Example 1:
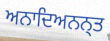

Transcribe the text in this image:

ਅਨਾਦਿਅਨਨ੍ਤ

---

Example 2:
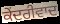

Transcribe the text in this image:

ਕੇਂਦਰੀਵਾਦ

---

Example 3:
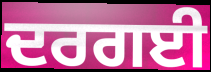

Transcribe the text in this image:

ਦਰਗਈ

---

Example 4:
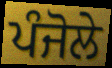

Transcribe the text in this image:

ਪੰਜੋਲੇ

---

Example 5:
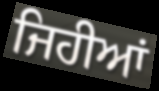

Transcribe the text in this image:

ਜਿਹੀਆਂ